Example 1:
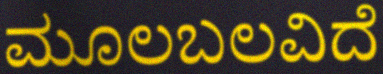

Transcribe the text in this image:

ಮೂಲಬಲವಿದೆ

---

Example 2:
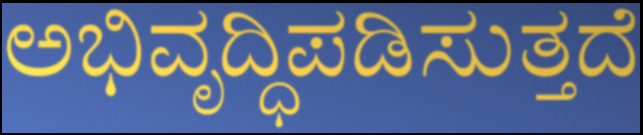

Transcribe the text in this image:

ಅಭಿವೃದ್ಧಿಪಡಿಸುತ್ತದೆ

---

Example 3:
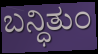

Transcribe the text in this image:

ಬನ್ಧಿತುಂ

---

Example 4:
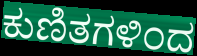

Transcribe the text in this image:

ಕುಣಿತಗಳಿಂದ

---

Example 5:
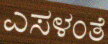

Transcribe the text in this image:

ಎಸಳಂತೆ